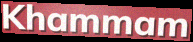
Khammam